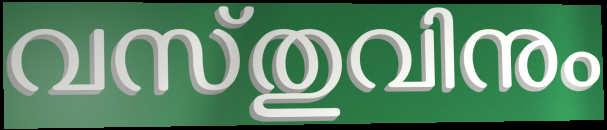
വസ്‌തുവിനും